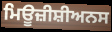
ਮਿਊਜ਼ੀਸ਼ੀਅਨਸ